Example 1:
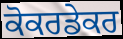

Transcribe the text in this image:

ਕੋਕਰਡੇਕਰ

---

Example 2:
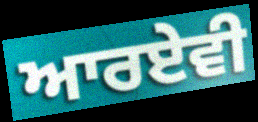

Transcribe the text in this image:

ਆਰਏਵੀ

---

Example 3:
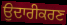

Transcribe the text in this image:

ਉਦਾਰੀਕਰਣ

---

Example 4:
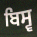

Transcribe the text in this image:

ਬਿਸ੍ਵ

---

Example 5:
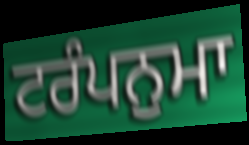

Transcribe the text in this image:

ਟਰੰਪਨੁਮਾ